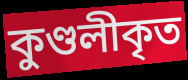
কুণ্ডলীকৃত